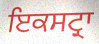
ਇਕਸਟ੍ਰਾ